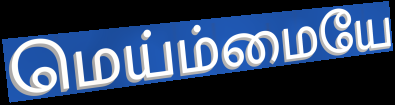
மெய்ம்மையே